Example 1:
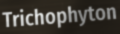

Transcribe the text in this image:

Trichophyton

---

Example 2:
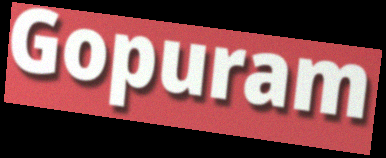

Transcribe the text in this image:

Gopuram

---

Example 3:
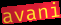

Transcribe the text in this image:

avani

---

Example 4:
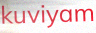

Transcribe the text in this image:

kuviyam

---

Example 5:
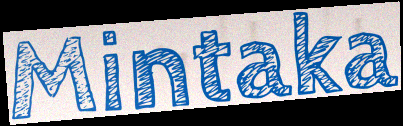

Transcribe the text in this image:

Mintaka